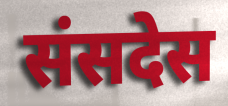
संसदेस